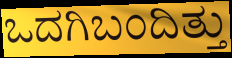
ಒದಗಿಬಂದಿತ್ತು